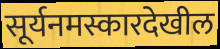
सूर्यनमस्कारदेखील